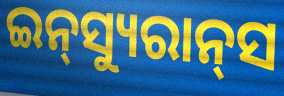
ଇନ୍‌ସ୍ୟୁରାନ୍‌ସ